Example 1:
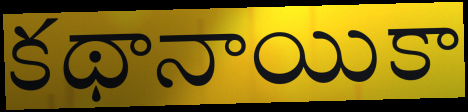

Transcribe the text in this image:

కథానాయికా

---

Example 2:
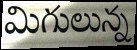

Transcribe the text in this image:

మిగులున్న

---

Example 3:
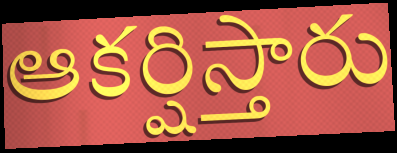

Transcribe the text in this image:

ఆకర్షిస్తారు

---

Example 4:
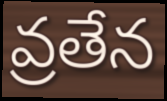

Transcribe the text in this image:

వ్రతేన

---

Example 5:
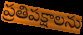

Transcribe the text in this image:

ప్రతిపక్షాలను